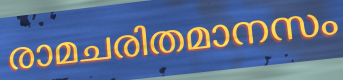
രാമചരിതമാനസം